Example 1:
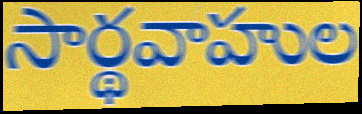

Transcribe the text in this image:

సార్థవాహుల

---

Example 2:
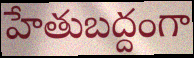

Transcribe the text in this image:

హేతుబద్దంగా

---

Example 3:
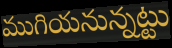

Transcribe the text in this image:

ముగియనున్నట్టు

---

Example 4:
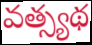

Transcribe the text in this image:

వత్స్యథ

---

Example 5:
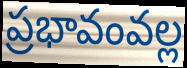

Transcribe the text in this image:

ప్రభావంవల్ల